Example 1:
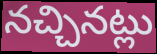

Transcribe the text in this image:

నచ్చినట్లు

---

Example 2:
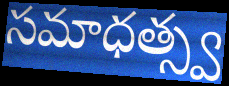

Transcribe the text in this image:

సమాధత్స్వ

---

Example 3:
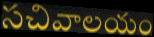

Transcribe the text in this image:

సచివాలయం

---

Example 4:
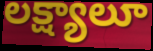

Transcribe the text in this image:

లక్ష్యాలూ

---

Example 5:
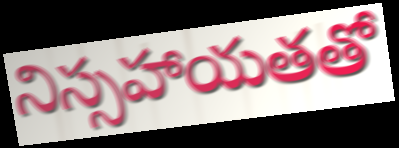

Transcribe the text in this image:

నిస్సహాయతతో